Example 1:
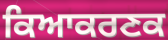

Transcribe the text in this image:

ਕਿਆਕਰਣਕ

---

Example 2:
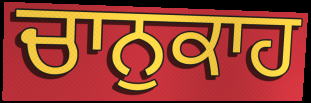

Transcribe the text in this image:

ਚਾਨੁਕਾਹ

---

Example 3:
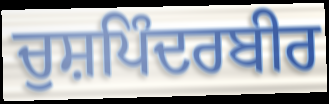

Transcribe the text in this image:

ਚੁਸ਼ਪਿੰਦਰਬੀਰ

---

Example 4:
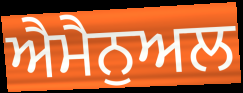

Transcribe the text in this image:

ਐਮੈਨੁਅਲ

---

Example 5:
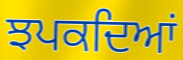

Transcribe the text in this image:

ਝਪਕਦਿਆਂ